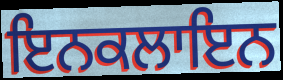
ਇਨਕਲਾਇਨ